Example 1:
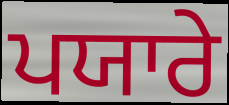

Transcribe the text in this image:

ਪਯਾਰੇ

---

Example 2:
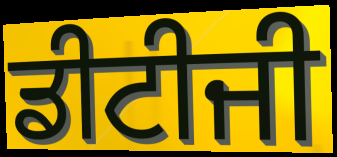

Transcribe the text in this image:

ਡੀਟੀਜੀ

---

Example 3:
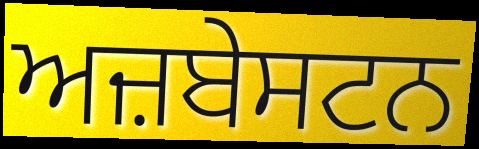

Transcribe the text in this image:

ਅਜ਼ਬੇਸਟਨ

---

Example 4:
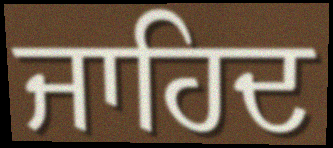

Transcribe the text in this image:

ਜਾਹਿਦ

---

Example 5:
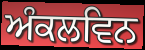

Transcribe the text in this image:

ਅੰਕਲਵਿਨ